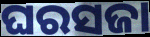
ଘରସଜା